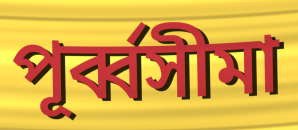
পূর্ব্বসীমা